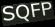
SQFP